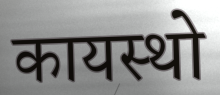
कायस्थो